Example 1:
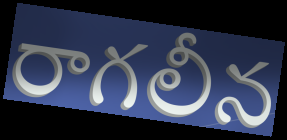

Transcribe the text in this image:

రాగలీన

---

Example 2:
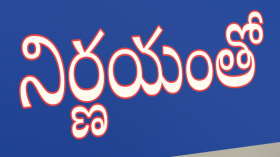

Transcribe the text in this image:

నిర్ణయంతో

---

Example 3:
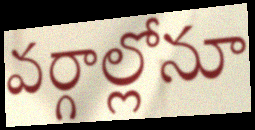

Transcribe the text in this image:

వర్గాల్లోనూ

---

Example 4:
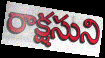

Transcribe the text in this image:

రాక్షసుని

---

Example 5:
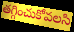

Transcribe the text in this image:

తగ్గించుకోవలసి